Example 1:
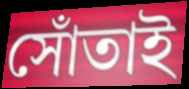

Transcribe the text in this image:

সোঁতাই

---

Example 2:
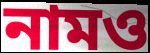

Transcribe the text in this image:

নামও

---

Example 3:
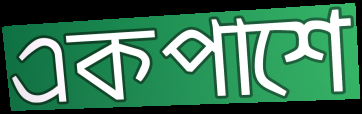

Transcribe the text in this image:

একপাশে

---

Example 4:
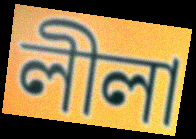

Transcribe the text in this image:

লীলা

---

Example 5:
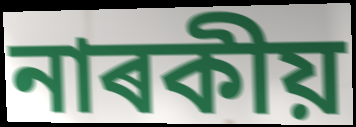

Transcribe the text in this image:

নাৰকীয়